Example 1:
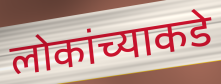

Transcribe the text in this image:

लोकांच्याकडे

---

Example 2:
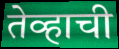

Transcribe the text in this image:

तेव्हाची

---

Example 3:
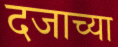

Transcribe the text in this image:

दजाच्या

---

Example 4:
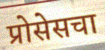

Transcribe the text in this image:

प्रोसेसचा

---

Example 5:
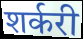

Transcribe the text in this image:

शर्करी